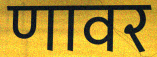
णावर